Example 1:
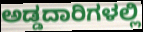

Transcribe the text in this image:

ಅಡ್ಡದಾರಿಗಳಲ್ಲಿ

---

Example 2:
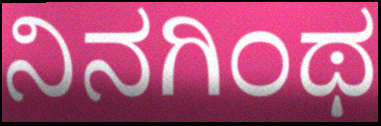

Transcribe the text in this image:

ನಿನಗಿಂಥ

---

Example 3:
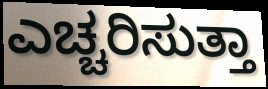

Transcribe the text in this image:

ಎಚ್ಚರಿಸುತ್ತಾ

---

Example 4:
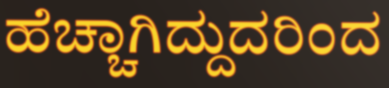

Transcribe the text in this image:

ಹೆಚ್ಚಾಗಿದ್ದುದರಿಂದ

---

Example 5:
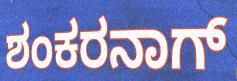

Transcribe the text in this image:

ಶಂಕರನಾಗ್